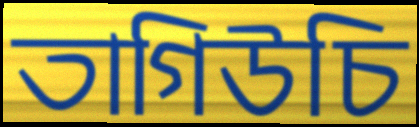
তাগিউচি